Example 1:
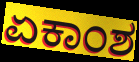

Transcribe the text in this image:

ಏಕಾಂಶ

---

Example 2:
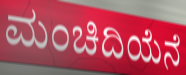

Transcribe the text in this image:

ಮಂಚಿದಿಯೆನೆ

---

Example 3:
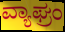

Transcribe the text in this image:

ವ್ಯಾಘ್ರಂ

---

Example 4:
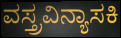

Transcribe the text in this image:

ವಸ್ತ್ರವಿನ್ಯಾಸಕಿ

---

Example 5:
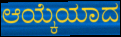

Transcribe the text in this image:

ಆಯ್ಕೆಯಾದ